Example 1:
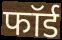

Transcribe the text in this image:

फॉर्ड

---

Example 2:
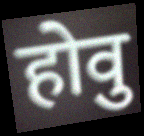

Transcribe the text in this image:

होवु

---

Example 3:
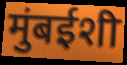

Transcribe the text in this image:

मुंबईशी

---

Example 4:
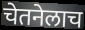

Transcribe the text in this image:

चेतनेलाच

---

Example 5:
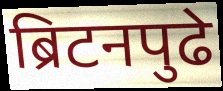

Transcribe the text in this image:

ब्रिटनपुढे